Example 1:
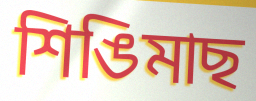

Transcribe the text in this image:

শিঙিমাছ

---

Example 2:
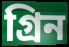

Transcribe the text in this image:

গ্রিন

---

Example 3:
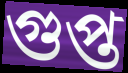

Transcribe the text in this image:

গুপ্ত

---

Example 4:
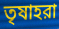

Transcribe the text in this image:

তৃষাহরা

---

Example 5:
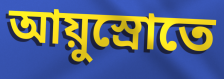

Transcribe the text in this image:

আয়ুস্রোতে